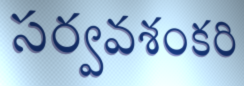
సర్వవశంకరి